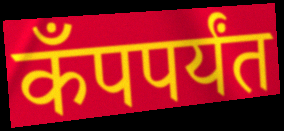
कँपपर्यंत